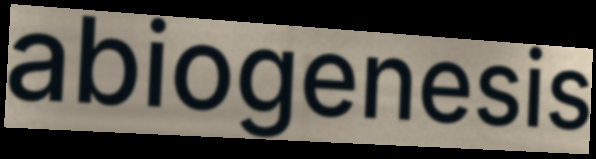
abiogenesis